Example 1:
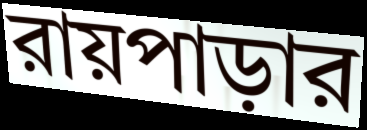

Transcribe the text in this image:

রায়পাড়ার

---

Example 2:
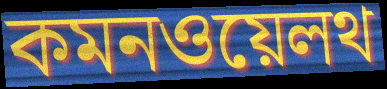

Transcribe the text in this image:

কমনওয়েলথ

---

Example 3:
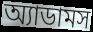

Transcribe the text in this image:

অ্যাডামস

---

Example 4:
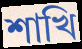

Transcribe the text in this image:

শাখি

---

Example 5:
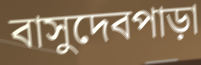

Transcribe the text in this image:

বাসুদেবপাড়া